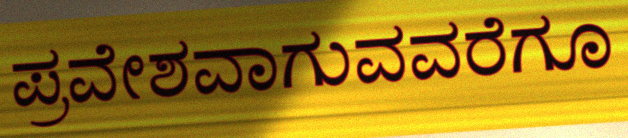
ಪ್ರವೇಶವಾಗುವವರೆಗೂ